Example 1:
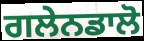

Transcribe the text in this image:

ਗਲੇਨਡਾਲੋ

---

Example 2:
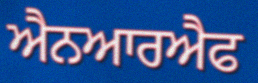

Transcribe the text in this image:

ਐਨਆਰਐਫ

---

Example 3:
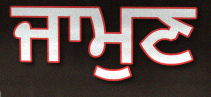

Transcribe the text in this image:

ਜਾਮੁਣ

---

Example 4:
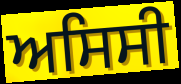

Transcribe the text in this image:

ਅਸਿਸੀ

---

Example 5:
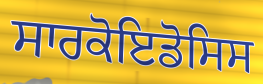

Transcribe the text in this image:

ਸਾਰਕੋਇਡੋਸਿਸ